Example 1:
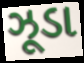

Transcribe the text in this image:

ઝૂડા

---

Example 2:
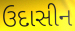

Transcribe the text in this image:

ઉદાસીન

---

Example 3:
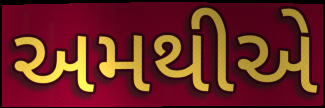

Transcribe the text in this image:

અમથીએ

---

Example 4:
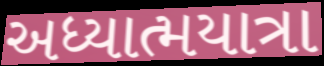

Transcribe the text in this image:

અધ્યાત્મયાત્રા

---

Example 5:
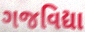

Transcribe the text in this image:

ગજવિદ્યા